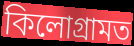
কিলোগ্ৰামত